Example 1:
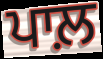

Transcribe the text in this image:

ਪਾਲ਼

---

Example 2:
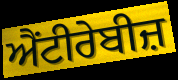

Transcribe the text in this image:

ਐਂਟੀਰੇਬੀਜ਼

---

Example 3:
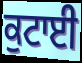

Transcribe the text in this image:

ਕੁਟਾਈ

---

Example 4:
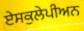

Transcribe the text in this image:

ਏਸਕੁਲੇਪੀਅਨ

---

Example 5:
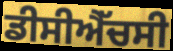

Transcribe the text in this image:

ਡੀਸੀਐੱਚਸੀ